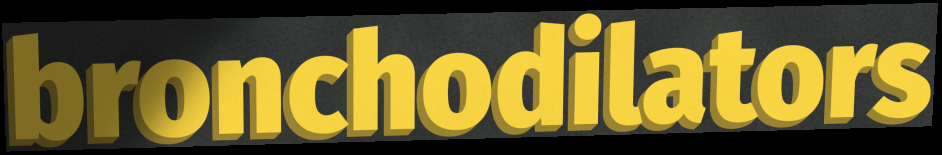
bronchodilators